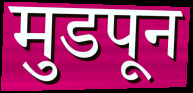
मुडपून